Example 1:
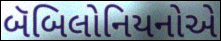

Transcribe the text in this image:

બૅબિલોનિયનોએ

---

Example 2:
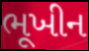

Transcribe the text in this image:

ભૂખીન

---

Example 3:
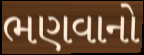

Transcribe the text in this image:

ભણવાનો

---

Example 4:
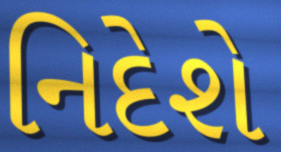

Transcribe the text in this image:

નિદેશે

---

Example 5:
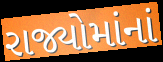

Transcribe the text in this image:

રાજ્યોમાંનાં